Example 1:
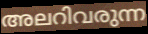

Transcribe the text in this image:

അലറിവരുന്ന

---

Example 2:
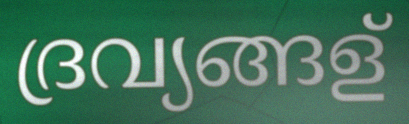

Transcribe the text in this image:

ദ്രവ്യങ്ങള്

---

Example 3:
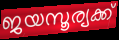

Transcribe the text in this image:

ജയസൂര്യക്ക്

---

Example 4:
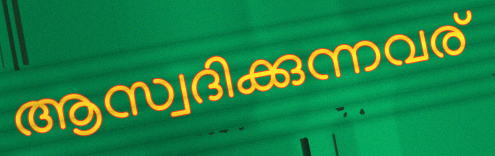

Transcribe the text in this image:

ആസ്വദിക്കുന്നവര്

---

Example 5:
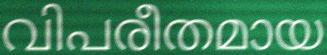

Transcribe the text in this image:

വിപരീതമായ